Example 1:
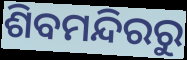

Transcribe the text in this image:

ଶିବମନ୍ଦିରରୁ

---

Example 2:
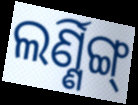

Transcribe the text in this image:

ଲର୍ଣ୍ଣିଙ୍ଗ୍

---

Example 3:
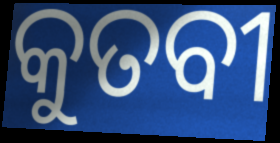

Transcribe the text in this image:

କୁତବୀ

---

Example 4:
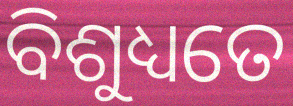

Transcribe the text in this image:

ବିଶୁଧ୍ୟତେ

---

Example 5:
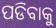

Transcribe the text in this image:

ପଡିବାକୁ